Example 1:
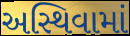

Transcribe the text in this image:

અસ્થિવામાં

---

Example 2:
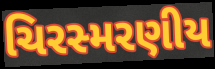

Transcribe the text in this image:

ચિરસ્મરણીય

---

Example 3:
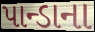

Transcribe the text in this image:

પાન્ડાના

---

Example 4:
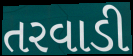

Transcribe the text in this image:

તરવાડી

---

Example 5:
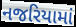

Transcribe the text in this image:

નજરિયામાં